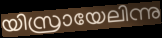
യിസ്രായേലിന്നു